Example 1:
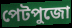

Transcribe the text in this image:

পেটপুজো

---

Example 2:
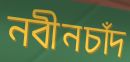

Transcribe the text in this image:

নবীনচাঁদ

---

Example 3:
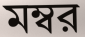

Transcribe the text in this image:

মম্বর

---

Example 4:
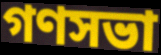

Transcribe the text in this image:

গণসভা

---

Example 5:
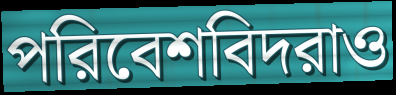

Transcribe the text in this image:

পরিবেশবিদরাও